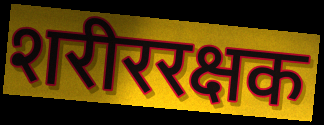
शरीररक्षक